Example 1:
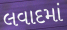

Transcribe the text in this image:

લવાદમાં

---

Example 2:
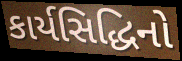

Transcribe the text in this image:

કાર્યસિદ્ધિનો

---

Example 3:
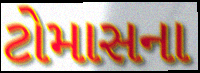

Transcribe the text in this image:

ટોમાસના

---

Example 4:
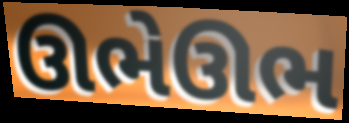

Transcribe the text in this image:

ઊભેઊભ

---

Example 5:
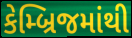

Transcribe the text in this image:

કેમ્બ્રિજમાંથી